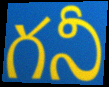
గనీ